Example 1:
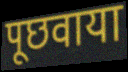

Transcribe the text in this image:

पूछवाया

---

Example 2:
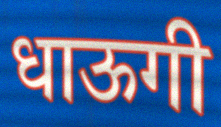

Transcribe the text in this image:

धाऊगी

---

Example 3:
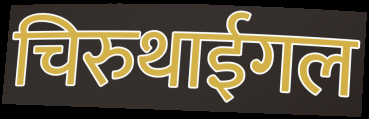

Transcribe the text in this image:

चिरुथाईगल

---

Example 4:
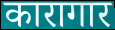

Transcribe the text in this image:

कारागार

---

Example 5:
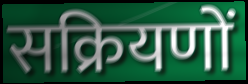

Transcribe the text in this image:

सक्रियणों